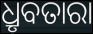
ଧ୍ରୃବତାରା